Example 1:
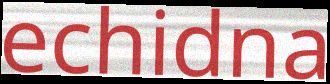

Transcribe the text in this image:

echidna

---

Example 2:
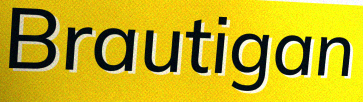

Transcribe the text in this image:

Brautigan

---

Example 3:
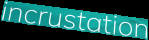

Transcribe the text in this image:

incrustation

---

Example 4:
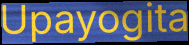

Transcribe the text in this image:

Upayogita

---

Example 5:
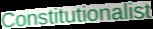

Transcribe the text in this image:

Constitutionalist